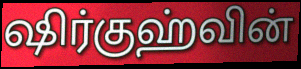
ஷிர்குஹ்வின்